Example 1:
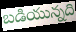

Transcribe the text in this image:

బడియున్నది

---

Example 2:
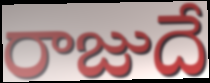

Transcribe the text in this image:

రాజుదే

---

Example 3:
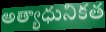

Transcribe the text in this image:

అత్యాధునికత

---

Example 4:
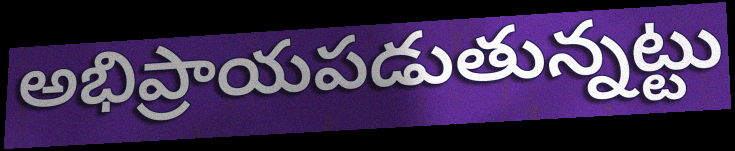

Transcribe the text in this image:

అభిప్రాయపడుతున్నట్టు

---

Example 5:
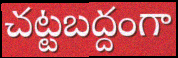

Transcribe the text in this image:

చట్టబద్దంగా